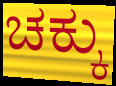
ಚಕ್ಕು